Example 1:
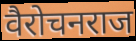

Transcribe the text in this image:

वैरोचनराज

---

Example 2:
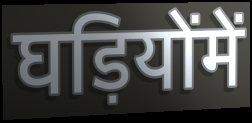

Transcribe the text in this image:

घड़ियोंमें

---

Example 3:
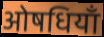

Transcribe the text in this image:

ओषधियाँ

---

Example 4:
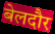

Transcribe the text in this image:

बेलदौर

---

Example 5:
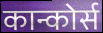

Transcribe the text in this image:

कान्कोर्स